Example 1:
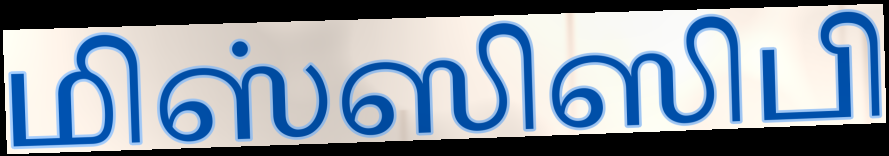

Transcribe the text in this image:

மிஸ்ஸிஸிபி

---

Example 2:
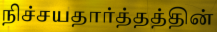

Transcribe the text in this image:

நிச்சயதார்த்தத்தின்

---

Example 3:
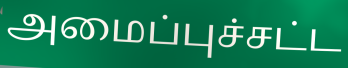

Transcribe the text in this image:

அமைப்புச்சட்ட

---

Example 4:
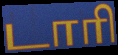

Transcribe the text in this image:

டாரி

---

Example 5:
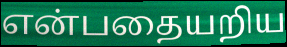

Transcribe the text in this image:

என்பதையறிய